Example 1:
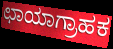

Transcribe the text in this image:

ಛಾಯಾಗ್ರಾಹಕ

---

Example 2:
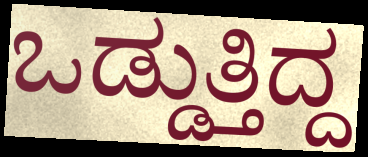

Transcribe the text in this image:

ಒಡ್ಡುತ್ತಿದ್ದ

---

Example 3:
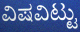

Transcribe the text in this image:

ವಿಷವಿಟ್ಟು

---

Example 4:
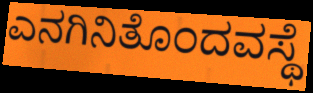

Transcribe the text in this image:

ಎನಗಿನಿತೊಂದವಸ್ಥೆ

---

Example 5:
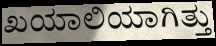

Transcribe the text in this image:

ಖಯಾಲಿಯಾಗಿತ್ತು